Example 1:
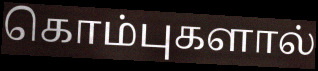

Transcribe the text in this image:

கொம்புகளால்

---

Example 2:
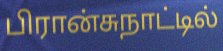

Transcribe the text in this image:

பிரான்சுநாட்டில்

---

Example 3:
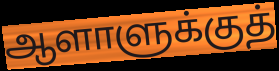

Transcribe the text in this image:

ஆளாளுக்குத்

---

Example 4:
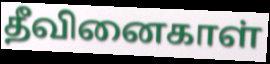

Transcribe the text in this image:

தீவினைகாள்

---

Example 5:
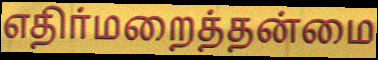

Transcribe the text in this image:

எதிர்மறைத்தன்மை